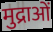
मुद्राओं